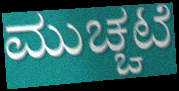
ಮುಚ್ಚಟೆ